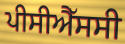
ਪੀਸੀਐੱਸਸੀ